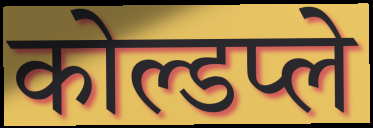
कोल्डप्ले